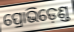
ପ୍ରୋଭିଡ଼େଣ୍ଡ